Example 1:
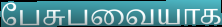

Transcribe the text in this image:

பேசுபவையாக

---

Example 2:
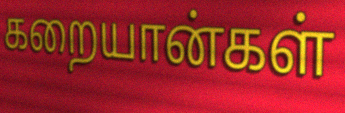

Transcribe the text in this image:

கறையான்கள்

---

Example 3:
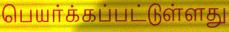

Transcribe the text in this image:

பெயர்க்கப்பட்டுள்ளது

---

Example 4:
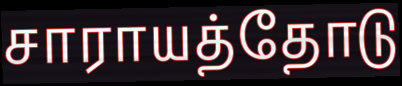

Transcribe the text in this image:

சாராயத்தோடு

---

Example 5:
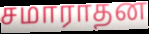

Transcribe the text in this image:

சமாராதன